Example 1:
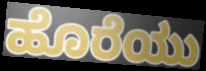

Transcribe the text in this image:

ಹೊರೆಯು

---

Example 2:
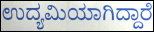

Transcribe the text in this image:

ಉದ್ಯಮಿಯಾಗಿದ್ದಾರೆ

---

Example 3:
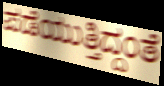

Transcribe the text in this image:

ಪಡೆಯುತ್ತಿದ್ದಂತೆ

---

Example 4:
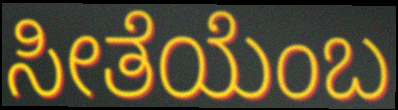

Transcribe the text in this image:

ಸೀತೆಯೆಂಬ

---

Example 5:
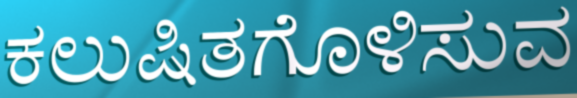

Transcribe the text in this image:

ಕಲುಷಿತಗೊಳಿಸುವ